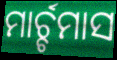
ମାର୍ଚ୍ଚମାସ